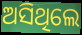
ଅସିଥିଲେ